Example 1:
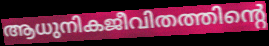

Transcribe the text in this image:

ആധുനികജീവിതത്തിന്റെ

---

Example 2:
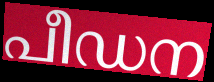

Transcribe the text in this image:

പീഡന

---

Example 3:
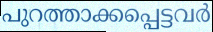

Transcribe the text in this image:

പുറത്താക്കപ്പെട്ടവർ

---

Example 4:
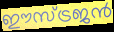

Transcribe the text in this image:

ഈസ്ട്രജൻ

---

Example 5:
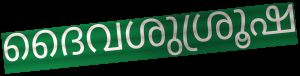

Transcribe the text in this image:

ദൈവശുശ്രൂഷ